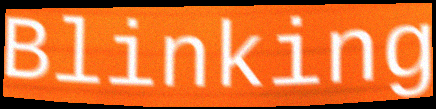
Blinking